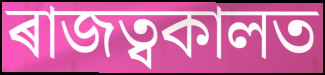
ৰাজত্বকালত